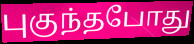
புகுந்தபோது